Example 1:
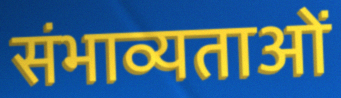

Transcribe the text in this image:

संभाव्यताओं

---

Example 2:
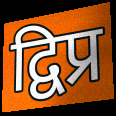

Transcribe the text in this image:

द्विप्र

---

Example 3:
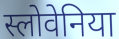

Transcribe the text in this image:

स्लोवेनिया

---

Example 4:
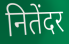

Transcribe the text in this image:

नितेंदर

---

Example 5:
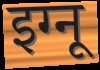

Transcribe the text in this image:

इग्नू